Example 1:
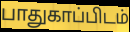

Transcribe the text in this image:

பாதுகாப்பிடம்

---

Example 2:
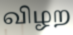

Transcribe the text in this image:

விழற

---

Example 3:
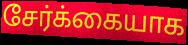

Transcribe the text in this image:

சேர்க்கையாக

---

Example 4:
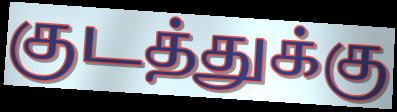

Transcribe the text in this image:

குடத்துக்கு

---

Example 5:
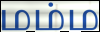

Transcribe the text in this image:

மம்ம